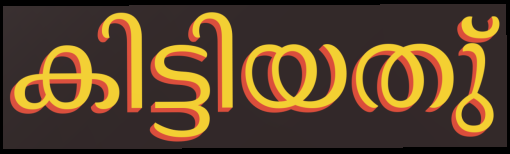
കിട്ടിയതു്